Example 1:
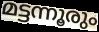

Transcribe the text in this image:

മട്ടന്നൂരും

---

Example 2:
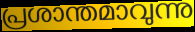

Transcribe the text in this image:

പ്രശാന്തമാവുന്നു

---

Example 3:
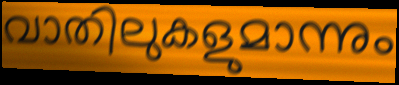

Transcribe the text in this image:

വാതിലുകളുമാന്നും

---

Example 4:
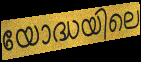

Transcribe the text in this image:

യോദ്ധയിലെ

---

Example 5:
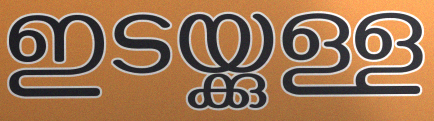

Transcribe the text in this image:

ഇടയ്ക്കുള്ള